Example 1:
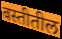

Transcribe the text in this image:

वस्तीतील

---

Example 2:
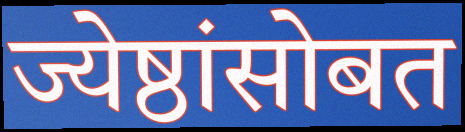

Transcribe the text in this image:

ज्येष्ठांसोबत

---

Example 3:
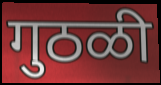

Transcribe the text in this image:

गुठळी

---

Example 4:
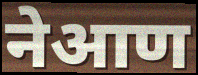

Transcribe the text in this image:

नेआण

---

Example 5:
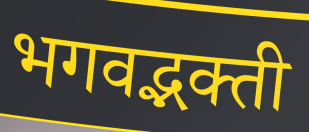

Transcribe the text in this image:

भगवद्भक्ती